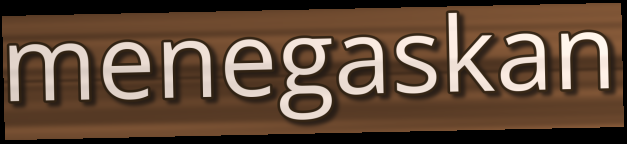
menegaskan